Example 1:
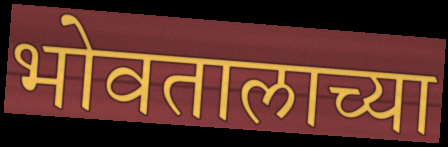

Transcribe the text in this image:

भोवतालाच्या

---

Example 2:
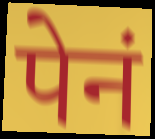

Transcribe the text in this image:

पेनं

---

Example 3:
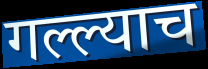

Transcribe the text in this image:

गल्ल्याच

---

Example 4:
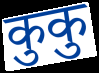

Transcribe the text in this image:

कुकु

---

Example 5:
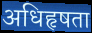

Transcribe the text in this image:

अधिहृषता